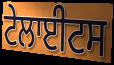
ਟੇਲਾਈਟਸ